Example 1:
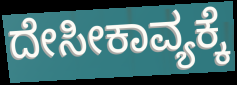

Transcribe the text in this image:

ದೇಸೀಕಾವ್ಯಕ್ಕೆ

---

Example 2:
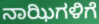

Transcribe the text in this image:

ನಾಝಿಗಳಿಗೆ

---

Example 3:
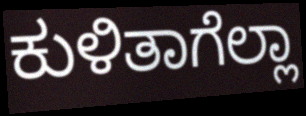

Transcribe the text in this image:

ಕುಳಿತಾಗೆಲ್ಲಾ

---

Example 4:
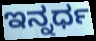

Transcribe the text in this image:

ಇನ್ನರ್ಧ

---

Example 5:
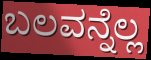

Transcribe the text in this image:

ಬಲವನ್ನೆಲ್ಲ